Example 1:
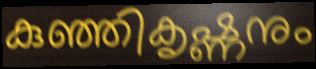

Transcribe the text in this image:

കുഞ്ഞികൃഷ്ണനും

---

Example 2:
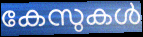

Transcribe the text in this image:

കേസുകൾ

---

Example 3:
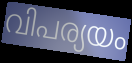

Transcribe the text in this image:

വിപര്യയം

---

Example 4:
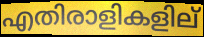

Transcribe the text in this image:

എതിരാളികളില്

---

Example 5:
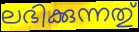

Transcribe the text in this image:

ലഭിക്കുന്നതു്